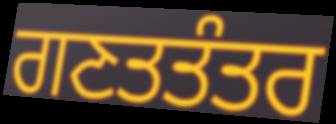
ਗਣਤਤੰਤਰ